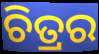
ଚିତ୍ରର